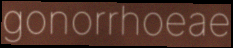
gonorrhoeae